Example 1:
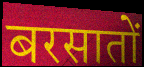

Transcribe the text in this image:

बरसातों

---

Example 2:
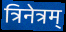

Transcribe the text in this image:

त्रिनेत्रम्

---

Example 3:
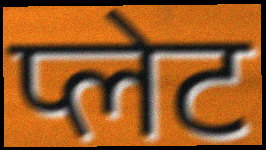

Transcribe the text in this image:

प्लेट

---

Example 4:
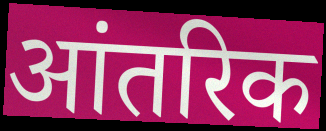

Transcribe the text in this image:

आंतरिक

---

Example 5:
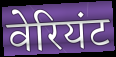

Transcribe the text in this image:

वेरियंट